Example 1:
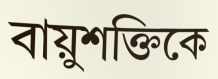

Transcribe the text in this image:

বায়ুশক্তিকে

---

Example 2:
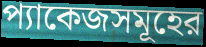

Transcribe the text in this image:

প্যাকেজসমূহের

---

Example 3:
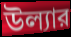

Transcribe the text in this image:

উল্যার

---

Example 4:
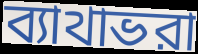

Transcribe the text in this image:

ব্যাথাভরা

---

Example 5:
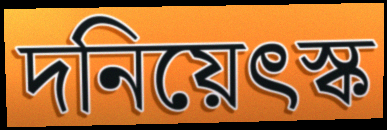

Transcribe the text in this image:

দনিয়েৎস্ক